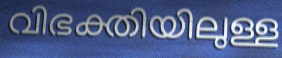
വിഭക്തിയിലുള്ള